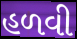
હળવી